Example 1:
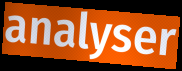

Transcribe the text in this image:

analyser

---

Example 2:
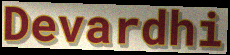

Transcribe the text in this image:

Devardhi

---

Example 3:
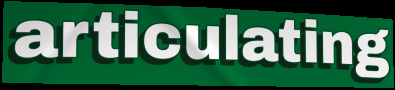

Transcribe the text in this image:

articulating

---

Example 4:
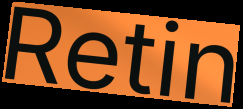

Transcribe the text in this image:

Retin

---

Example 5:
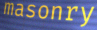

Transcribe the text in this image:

masonry